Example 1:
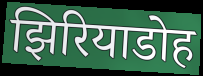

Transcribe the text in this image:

झिरियाडोह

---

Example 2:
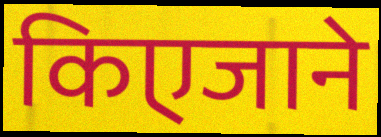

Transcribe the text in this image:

किएजाने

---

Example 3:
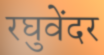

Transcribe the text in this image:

रघुवेंदर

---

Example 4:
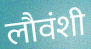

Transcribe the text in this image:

लौवंशी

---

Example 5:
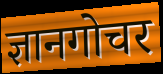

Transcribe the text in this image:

ज्ञानगोचर